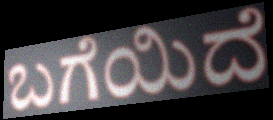
ಬಗೆಯಿದೆ